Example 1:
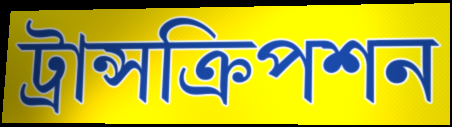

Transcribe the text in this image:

ট্রান্সক্রিপশন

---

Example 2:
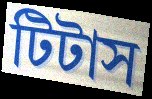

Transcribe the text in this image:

টিটাস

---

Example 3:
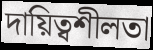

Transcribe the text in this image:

দায়িত্বশীলতা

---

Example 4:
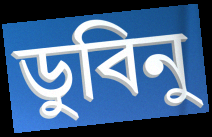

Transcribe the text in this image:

ডুবিনু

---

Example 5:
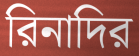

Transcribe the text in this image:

রিনাদির